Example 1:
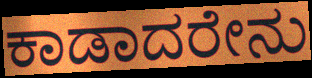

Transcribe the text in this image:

ಕಾಡಾದರೇನು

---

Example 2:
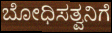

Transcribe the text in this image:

ಬೋಧಿಸತ್ವನಿಗೆ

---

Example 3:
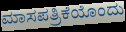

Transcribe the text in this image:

ಮಾಸಪತ್ರಿಕೆಯೊಂದು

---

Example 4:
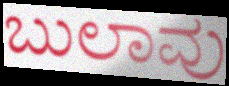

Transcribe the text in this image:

ಬುಲಾವು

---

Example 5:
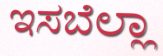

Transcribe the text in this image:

ಇಸಬೆಲ್ಲಾ